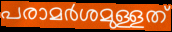
പരാമർശമുള്ളത്